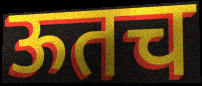
ऊतच